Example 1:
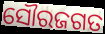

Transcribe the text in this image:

ସୌରଜଗତ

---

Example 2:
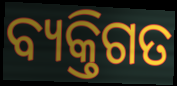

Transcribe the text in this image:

ବ୍ୟକ୍ତିଗତ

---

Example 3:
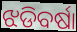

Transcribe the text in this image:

ଝଡିବର୍ଷା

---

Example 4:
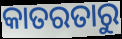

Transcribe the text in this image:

କାତରତାରୁ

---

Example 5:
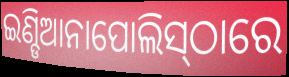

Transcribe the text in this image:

ଇଣ୍ଡିଆନାପୋଲିସ୍‍ଠାରେ